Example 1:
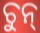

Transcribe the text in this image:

ଚୁନ୍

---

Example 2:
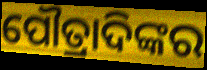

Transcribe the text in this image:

ପୌତ୍ରାଦିଙ୍କର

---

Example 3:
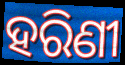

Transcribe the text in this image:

ହରିଣୀ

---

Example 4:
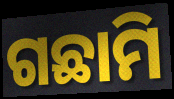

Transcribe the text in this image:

ଗଛାମି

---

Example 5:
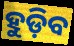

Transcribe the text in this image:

ହୁଡ଼ିବ